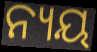
ନ୍ୟୟ